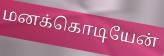
மனக்கொடியேன்